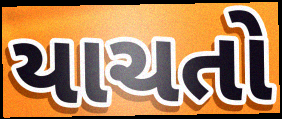
યાચતો